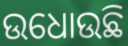
ଉଧୋଉଛି